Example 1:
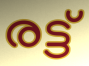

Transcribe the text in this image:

രട്ട്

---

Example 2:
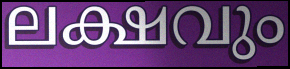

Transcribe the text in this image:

ലക്ഷവും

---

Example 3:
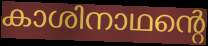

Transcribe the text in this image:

കാശിനാഥന്റെ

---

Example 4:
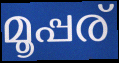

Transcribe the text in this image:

മൂപ്പര്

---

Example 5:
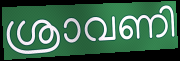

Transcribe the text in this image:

ശ്രാവണി